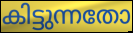
കിട്ടുന്നതോ